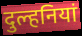
दुल्हनियां